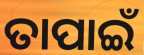
ତାପାଇଁ